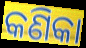
କଣିକା